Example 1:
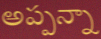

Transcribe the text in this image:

అప్పన్నా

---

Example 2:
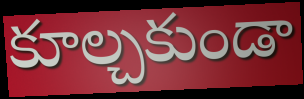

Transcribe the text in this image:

కూల్చకుండా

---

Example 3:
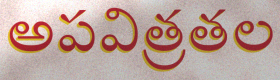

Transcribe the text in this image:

అపవిత్రతల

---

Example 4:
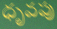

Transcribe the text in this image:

ధృవపు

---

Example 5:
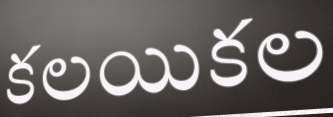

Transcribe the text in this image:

కలయికల